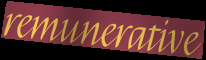
remunerative